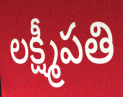
లక్ష్మీపతి